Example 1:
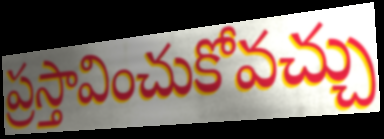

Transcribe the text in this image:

ప్రస్తావించుకోవచ్చు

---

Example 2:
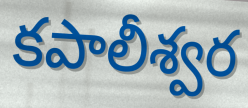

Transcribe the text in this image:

కపాలీశ్వర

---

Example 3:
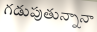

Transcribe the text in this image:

గడుపుతున్నానా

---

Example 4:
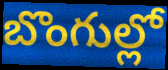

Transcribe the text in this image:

బొంగుల్లో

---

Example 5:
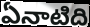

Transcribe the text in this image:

ఏనాటిది